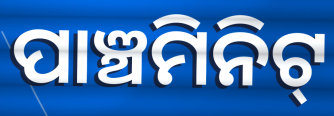
ପାଞ୍ଚମିନିଟ୍